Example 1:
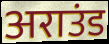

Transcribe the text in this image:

अराउंड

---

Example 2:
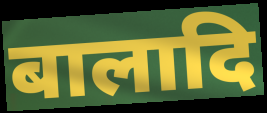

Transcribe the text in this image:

बालादि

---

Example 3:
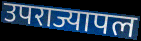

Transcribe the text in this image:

उपराज्यापल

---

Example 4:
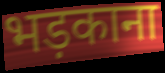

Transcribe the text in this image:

भड़काना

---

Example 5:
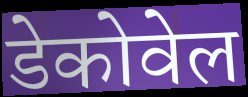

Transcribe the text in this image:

डेकोवेल